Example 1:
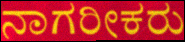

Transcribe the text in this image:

ನಾಗರೀಕರು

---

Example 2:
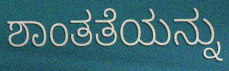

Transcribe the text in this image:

ಶಾಂತತೆಯನ್ನು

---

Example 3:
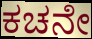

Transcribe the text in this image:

ಕಚನೇ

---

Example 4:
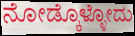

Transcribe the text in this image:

ನೋಡ್ಕೊಳ್ಳೋದು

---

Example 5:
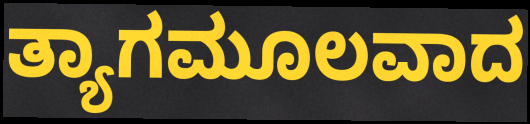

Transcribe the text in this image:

ತ್ಯಾಗಮೂಲವಾದ